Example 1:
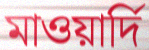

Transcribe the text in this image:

মাওয়ার্দি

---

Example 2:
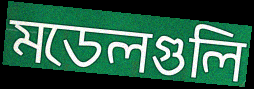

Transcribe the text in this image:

মডেলগুলি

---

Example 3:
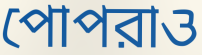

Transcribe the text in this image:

পোপরাও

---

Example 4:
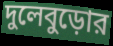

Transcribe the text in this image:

দুলেবুড়োর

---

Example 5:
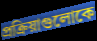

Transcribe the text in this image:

প্রক্রিয়াগুলোকে